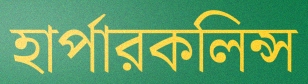
হার্পারকলিন্স